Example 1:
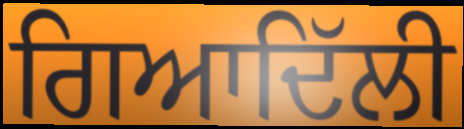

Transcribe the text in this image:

ਗਿਆਦਿੱਲੀ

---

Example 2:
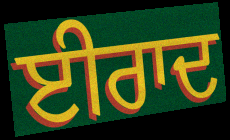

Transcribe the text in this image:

ਈਰਾਦ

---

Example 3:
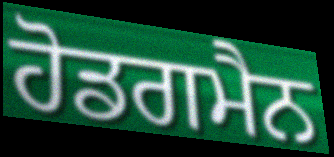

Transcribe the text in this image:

ਹੋਡਗਮੈਨ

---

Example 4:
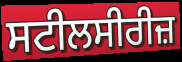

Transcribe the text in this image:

ਸਟੀਲਸੀਰੀਜ਼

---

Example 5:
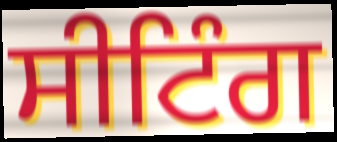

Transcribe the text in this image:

ਸੀਟਿੰਗ